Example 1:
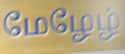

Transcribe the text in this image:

மேழேழ்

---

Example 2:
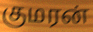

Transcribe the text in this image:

குமரன்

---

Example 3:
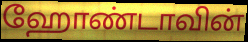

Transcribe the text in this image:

ஹோண்டாவின்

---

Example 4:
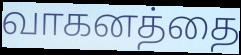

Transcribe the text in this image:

வாகனத்தை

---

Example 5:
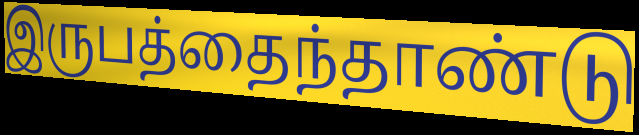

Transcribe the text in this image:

இருபத்தைந்தாண்டு